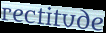
rectitude